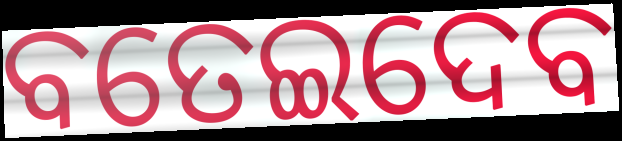
ବତେଇଦେବ